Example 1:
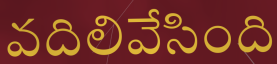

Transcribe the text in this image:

వదిలివేసింది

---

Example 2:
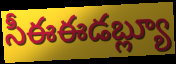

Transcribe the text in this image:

సీఈఈడబ్ల్యూ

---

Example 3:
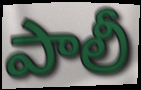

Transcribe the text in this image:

పాలీ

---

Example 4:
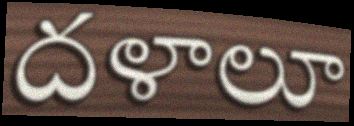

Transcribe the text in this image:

దళాలూ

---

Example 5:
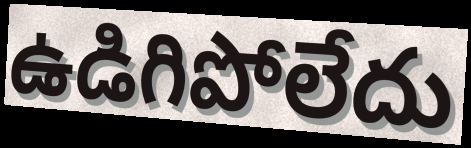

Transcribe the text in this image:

ఉడిగిపోలేదు